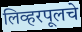
लिव्हरपूलचे